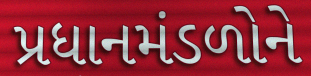
પ્રધાનમંડળોને